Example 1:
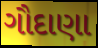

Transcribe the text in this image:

ગૌદાણા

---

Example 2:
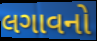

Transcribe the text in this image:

લગાવનો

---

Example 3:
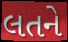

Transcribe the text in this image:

લતને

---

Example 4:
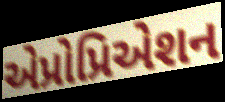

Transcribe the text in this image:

એપ્રોપ્રિએશન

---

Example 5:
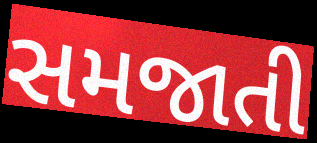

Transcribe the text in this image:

સમજાતી